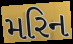
મરિન